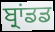
ਬ੍ਰਾਂਡਡ